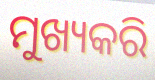
ମୁଖ୍ୟକରି